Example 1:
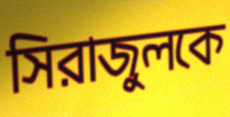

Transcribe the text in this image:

সিরাজুলকে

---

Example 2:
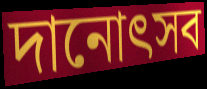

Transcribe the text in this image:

দানোৎসব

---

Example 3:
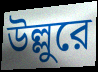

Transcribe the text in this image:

উল্লুরে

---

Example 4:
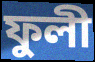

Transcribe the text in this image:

ফুলী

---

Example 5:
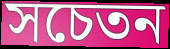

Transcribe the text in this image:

সচেতন